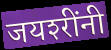
जयश्रींनी